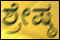
ಶ್ರೇಷ್ಠ